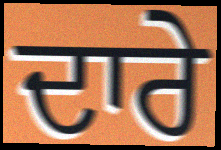
ਦਾਰੇ